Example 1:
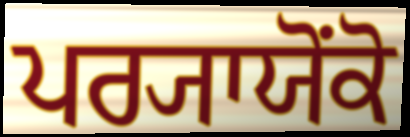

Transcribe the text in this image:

ਪਰ੍ਯਾਯੋਂਕੋ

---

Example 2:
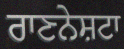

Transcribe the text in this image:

ਰਾਣਨੇਸ਼ਟਾ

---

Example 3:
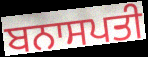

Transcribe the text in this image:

ਬਨਾਸਪਤੀ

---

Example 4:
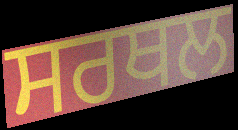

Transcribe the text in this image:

ਸਰਥਲ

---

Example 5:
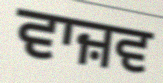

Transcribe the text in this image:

ਵਾਜ਼ਵ